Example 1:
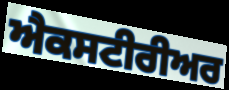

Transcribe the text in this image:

ਐਕਸਟੀਰੀਅਰ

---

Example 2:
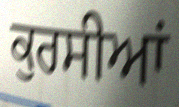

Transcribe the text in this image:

ਕੁਰਸੀਆਂ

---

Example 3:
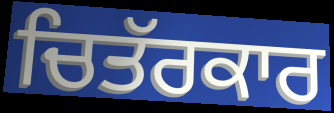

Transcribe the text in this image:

ਚਿਤੱਰਕਾਰ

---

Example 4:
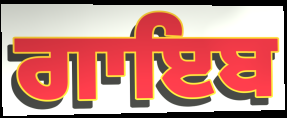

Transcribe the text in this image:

ਗਾਇਬ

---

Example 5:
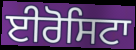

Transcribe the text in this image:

ਈਰੋਸਿਟਾ